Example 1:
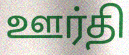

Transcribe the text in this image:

ஊர்தி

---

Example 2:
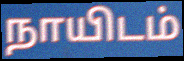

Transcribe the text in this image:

நாயிடம்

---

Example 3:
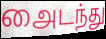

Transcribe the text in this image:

அைடந்து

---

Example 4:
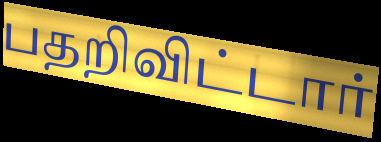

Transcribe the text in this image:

பதறிவிட்டார்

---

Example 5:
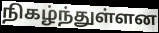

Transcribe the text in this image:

நிகழ்ந்துள்ளன